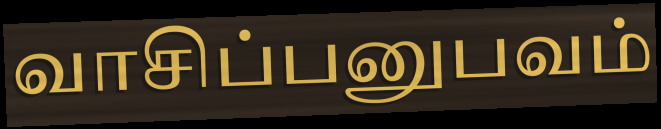
வாசிப்பனுபவம்